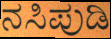
ನಸಿಪುಡಿ